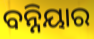
ବନ୍ନିୟାର